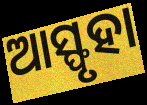
ଆସ୍ଫୃହା